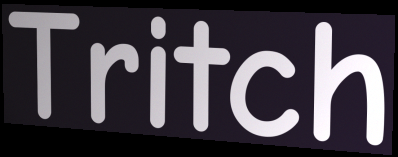
Tritch